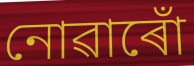
নোৱাৰোঁ